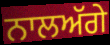
ਨਾਲਅੱਗੇ